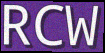
RCW